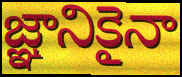
జ్ఞానికైనా